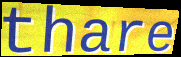
thare